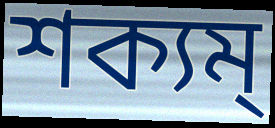
শক্যম্